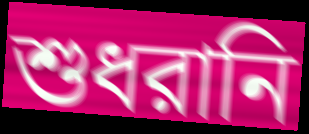
শুধরানি